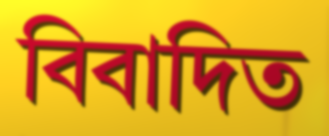
বিবাদিত